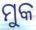
ମୁକ